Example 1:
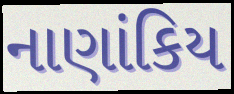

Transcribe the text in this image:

નાણાંકિય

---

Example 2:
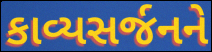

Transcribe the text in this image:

કાવ્યસર્જનને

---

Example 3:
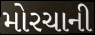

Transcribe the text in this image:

મોરચાની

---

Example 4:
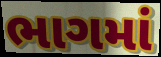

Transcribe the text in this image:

ભાગમાં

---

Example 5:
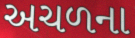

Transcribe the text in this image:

અચળના